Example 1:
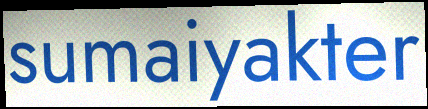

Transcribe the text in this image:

sumaiyakter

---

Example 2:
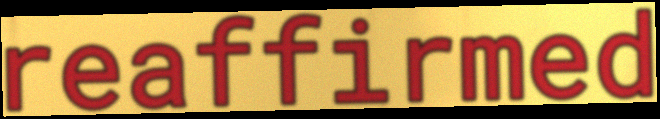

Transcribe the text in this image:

reaffirmed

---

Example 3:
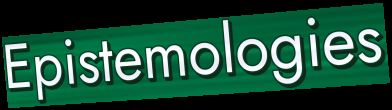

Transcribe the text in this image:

Epistemologies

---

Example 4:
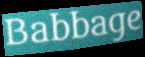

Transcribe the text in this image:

Babbage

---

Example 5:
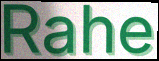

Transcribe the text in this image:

Rahe